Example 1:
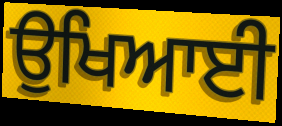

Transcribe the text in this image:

ਉਖਿਆਈ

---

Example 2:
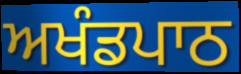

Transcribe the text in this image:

ਅਖੰਡਪਾਠ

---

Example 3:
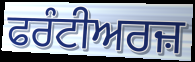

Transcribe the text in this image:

ਫਰੰਟੀਅਰਜ਼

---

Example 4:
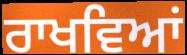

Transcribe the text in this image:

ਰਾਖਵਿਆਂ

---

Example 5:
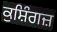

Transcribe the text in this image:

ਕੁਸ਼ਿੰਗਜ਼